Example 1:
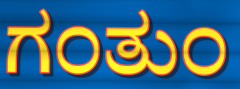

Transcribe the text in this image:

ಗಂತುಂ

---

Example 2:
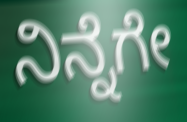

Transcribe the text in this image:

ನಿನ್ನೆಗೇ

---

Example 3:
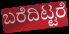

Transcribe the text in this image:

ಬರೆದಿಟ್ಟರೆ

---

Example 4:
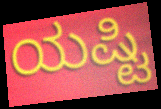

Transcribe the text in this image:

ಯಷ್ಟಿ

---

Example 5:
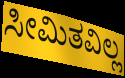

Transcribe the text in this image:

ಸೀಮಿತವಿಲ್ಲ